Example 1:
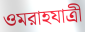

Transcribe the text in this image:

ওমরাহযাত্রী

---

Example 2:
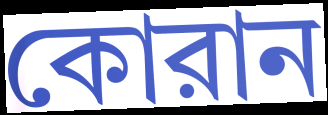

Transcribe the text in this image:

কোরান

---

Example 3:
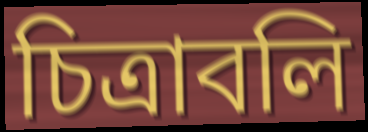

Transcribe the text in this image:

চিত্রাবলি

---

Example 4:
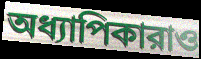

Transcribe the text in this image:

অধ্যাপিকারাও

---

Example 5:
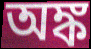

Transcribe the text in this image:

অঙ্ক